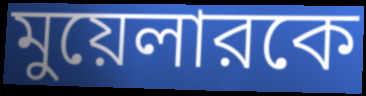
মুয়েলারকে